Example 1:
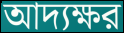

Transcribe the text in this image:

আদ্যক্ষর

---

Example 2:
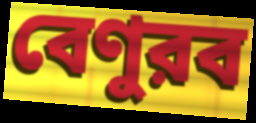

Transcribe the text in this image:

বেণুরব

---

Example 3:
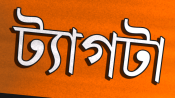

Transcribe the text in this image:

ট্যাগটা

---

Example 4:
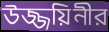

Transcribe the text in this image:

উজ্জয়িনীর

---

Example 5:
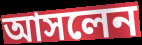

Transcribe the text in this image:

আসলেন